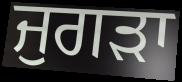
ਜੁਗੜਾ